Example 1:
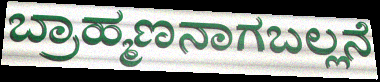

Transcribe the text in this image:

ಬ್ರಾಹ್ಮಣನಾಗಬಲ್ಲನೆ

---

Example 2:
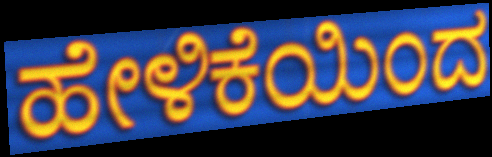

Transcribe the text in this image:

ಹೇಳಿಕೆಯಿಂದ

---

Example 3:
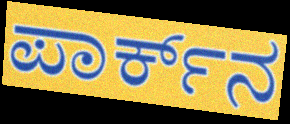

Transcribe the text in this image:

ಪಾರ್ಕ್‌ನ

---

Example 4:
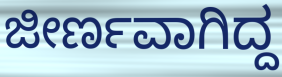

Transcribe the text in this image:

ಜೀರ್ಣವಾಗಿದ್ದ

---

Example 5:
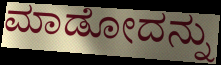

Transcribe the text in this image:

ಮಾಡೋದನ್ನು